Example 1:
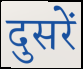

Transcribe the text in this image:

दुसरें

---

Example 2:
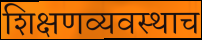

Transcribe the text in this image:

शिक्षणव्यवस्थाच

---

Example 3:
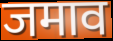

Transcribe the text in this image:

जमाव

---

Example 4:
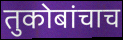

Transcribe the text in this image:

तुकोबांचाच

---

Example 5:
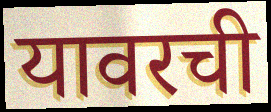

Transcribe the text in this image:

यावरची